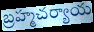
బ్రహ్మచర్యాయ